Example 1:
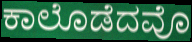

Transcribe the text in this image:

ಕಾಲೊಡೆದವೊ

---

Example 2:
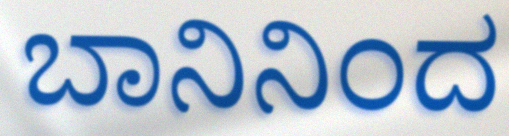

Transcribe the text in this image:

ಬಾನಿನಿಂದ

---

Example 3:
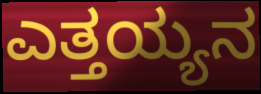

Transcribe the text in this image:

ಎತ್ತಯ್ಯನ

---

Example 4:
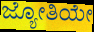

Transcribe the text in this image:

ಜ್ಯೋತಿಯೇ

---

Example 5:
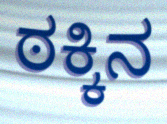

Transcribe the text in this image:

ಠಕ್ಕಿನ